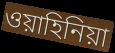
ওয়াহিনিয়া